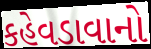
કહેવડાવાનો